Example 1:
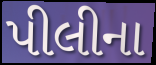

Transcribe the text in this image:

પીલીના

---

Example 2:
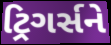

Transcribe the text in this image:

ટ્રિગર્સને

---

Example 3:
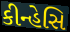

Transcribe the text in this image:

કીન્હેસિ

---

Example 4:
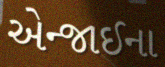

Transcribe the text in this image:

એન્જાઈના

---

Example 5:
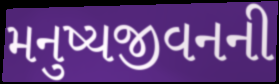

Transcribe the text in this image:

મનુષ્યજીવનની